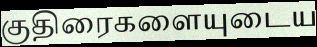
குதிரைகளையுடைய